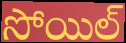
సోయిల్